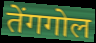
तेंगगोल